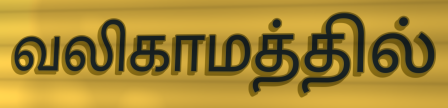
வலிகாமத்தில்